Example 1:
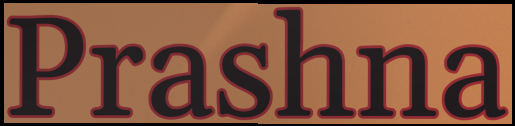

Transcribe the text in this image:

Prashna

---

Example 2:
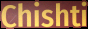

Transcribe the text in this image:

Chishti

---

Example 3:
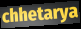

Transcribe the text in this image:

chhetarya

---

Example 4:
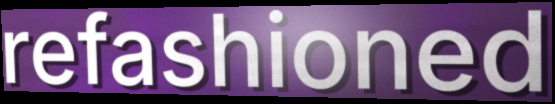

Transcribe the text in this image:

refashioned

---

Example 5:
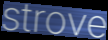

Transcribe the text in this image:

strove